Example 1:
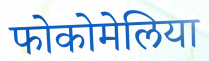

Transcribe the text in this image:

फोकोमेलिया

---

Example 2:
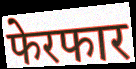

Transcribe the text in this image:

फेरफार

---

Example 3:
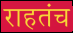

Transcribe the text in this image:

राहतंच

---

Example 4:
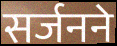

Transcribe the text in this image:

सर्जनने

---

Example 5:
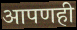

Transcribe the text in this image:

आपणही